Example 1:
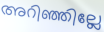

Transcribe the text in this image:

അറിഞ്ഞില്ലേ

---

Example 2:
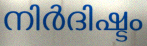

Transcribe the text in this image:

നിർദിഷ്ടം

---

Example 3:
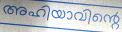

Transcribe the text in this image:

അഹിയാവിന്റെ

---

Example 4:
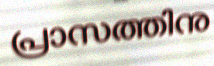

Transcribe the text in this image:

പ്രാസത്തിനു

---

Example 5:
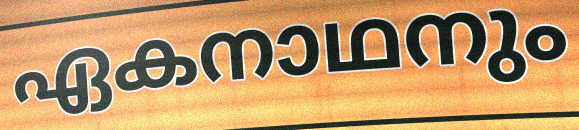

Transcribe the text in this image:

ഏകനാഥനും